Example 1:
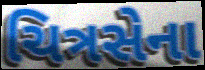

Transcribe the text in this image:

ચિત્રસેના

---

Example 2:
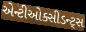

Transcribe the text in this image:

એન્ટીઓક્સીડન્ટ્સ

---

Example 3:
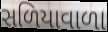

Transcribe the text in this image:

સળિયાવાળા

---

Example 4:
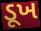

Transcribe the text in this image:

ડૂખ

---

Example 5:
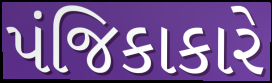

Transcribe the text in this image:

પંજિકાકારે